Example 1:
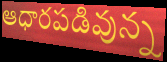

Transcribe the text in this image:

ఆధారపడివున్న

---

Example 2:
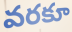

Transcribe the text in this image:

వరకూ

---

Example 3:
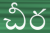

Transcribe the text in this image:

చీర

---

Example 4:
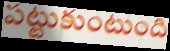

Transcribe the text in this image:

పట్టుకుంటుంది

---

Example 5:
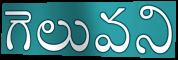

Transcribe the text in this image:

గెలువని